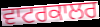
ਵਾਟਰਕਾਲਰ